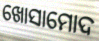
ଖୋସାମୋଦ